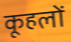
कूहलों